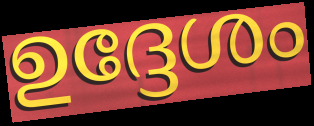
ഉദ്ദേശം